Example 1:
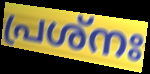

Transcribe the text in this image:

പ്രശ്നഃ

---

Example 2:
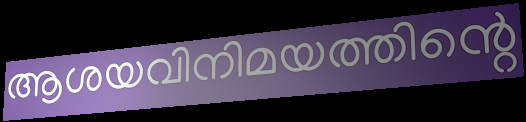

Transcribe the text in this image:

ആശയവിനിമയത്തിന്റെ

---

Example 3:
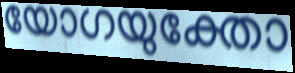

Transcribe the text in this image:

യോഗയുക്തോ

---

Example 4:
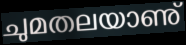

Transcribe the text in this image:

ചുമതലയാണു്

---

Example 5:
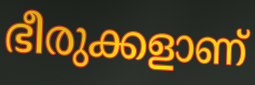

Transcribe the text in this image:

ഭീരുക്കളാണ്